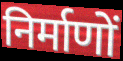
निर्माणों